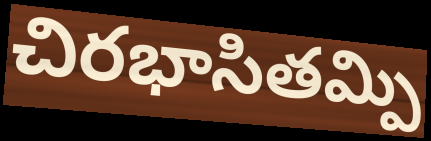
చిరభాసితమ్పి